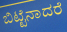
ಬಿಟ್ಟೆನಾದರೆ